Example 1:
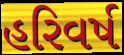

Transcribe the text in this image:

હરિવર્ષ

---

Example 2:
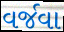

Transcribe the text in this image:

વર્જવા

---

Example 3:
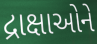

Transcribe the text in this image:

દ્રાક્ષાઓને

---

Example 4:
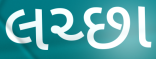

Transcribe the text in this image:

લચ્છા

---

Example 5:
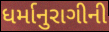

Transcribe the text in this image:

ધર્માનુરાગીની